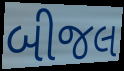
બીજલ